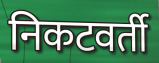
निकटवर्ती